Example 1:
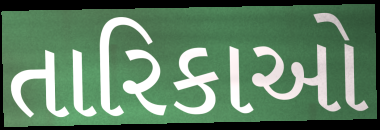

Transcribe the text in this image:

તારિકાઓ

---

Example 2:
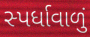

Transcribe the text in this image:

સ્પર્ધાવાળું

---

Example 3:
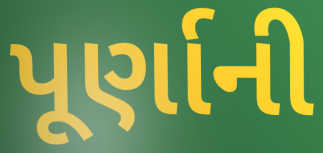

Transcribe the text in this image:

પૂર્ણાની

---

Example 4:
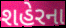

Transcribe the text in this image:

શહેરના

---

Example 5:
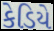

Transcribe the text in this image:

કેડિયે